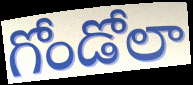
గోండోలా